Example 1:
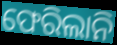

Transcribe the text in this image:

ଫେରିଲାନି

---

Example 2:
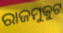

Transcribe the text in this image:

ରାଜମୁକୁଟ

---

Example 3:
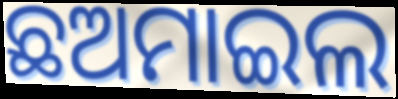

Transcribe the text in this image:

ଛଅମାଇଲ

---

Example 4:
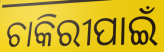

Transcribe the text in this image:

ଚାକିରୀପାଇଁ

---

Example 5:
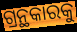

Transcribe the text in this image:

ଗ୍ରନ୍ଥକାରକୁ